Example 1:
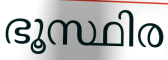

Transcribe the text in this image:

ഭൂസ്ഥിര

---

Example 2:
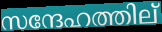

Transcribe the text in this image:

സന്ദേഹത്തില്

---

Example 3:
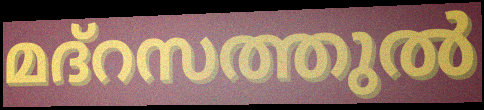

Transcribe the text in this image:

മദ്റസത്തുൽ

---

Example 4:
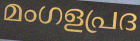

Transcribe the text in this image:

മംഗളപ്രദ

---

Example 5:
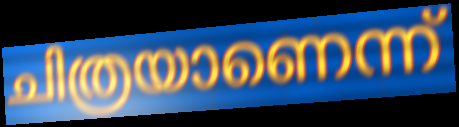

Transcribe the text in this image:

ചിത്രയാണെന്ന്